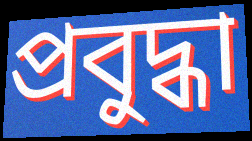
প্রবুদ্ধা